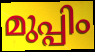
മുപ്പിം